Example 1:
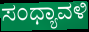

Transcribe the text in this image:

ಸಂಧ್ಯಾವಳಿ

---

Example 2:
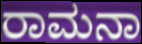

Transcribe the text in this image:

ರಾಮನಾ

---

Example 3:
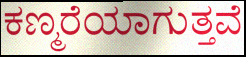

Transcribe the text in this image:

ಕಣ್ಮರೆಯಾಗುತ್ತವೆ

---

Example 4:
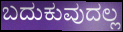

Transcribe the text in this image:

ಬದುಕುವುದಲ್ಲ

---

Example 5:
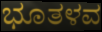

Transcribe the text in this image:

ಭೂತಳವ